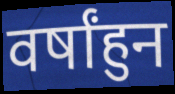
वर्षांहुन